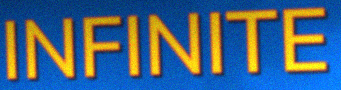
INFINITE